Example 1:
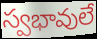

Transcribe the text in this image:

స్వభావులే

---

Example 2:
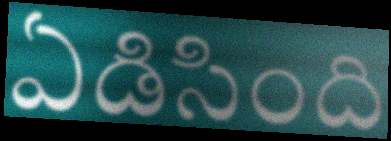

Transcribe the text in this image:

ఏడిసింది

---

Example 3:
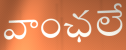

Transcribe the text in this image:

వాంఛలే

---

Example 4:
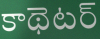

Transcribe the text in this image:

కాథెటర్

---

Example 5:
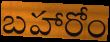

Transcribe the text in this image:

బహారోం